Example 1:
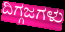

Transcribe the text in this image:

ದಿಗ್ಗಜಗಳು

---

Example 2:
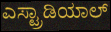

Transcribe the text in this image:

ಎಸ್ಟ್ರಾಡಿಯಾಲ್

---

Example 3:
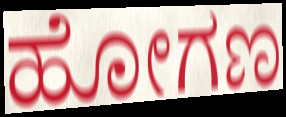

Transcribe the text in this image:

ಹೋಗಣ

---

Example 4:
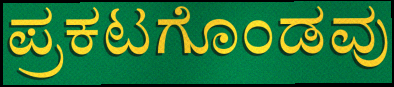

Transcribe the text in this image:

ಪ್ರಕಟಗೊಂಡವು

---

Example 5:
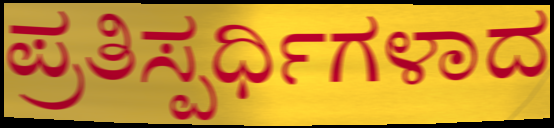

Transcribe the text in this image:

ಪ್ರತಿಸ್ಪರ್ಧಿಗಳಾದ